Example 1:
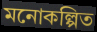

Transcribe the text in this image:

মনোকল্পিত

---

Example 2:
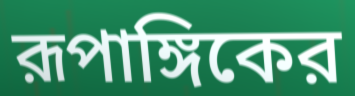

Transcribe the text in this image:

রূপাঙ্গিকের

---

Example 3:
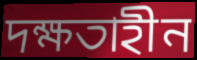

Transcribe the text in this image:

দক্ষতাহীন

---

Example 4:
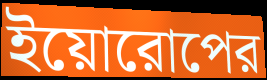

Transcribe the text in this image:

ইয়োরোপের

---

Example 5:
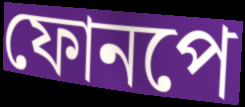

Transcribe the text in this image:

ফোনপে